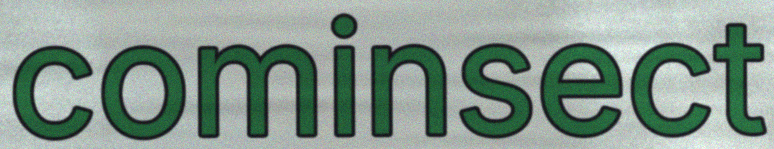
cominsect